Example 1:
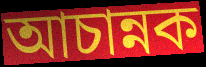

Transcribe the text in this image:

আচান্নক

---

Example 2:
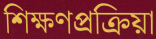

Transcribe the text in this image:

শিক্ষণপ্রক্রিয়া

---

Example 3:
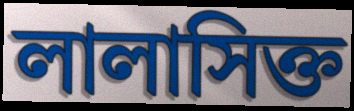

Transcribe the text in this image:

লালাসিক্ত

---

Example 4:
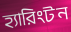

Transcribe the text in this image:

হ্যারিংটন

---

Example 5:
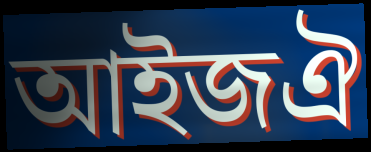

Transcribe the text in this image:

আইজঐ